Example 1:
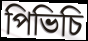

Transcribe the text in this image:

পিভিচি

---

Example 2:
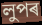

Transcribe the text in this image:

লুপৰ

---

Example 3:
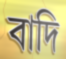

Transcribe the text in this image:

বাদি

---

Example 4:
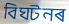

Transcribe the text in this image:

বিঘটনৰ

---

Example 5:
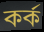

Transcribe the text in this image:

কৰ্ক